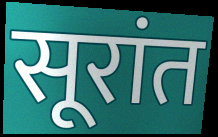
सूरांत